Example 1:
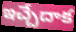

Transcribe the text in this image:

ఇచ్చేదాక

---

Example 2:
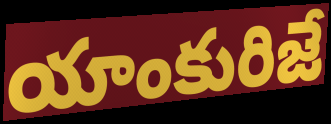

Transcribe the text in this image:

యాంకురిజే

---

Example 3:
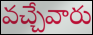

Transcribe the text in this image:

వచ్చేవారు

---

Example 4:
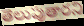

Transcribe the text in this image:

తెలుపుతారని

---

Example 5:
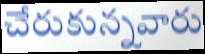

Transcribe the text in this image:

చేరుకున్నవారు